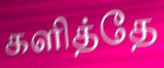
களித்தே